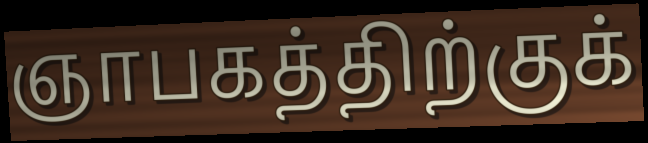
ஞாபகத்திற்குக்